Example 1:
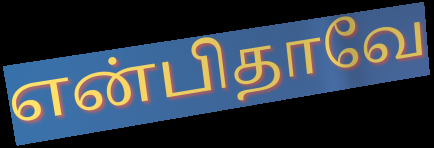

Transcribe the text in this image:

என்பிதாவே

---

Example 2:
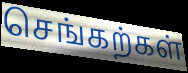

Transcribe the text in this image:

செங்கற்கள்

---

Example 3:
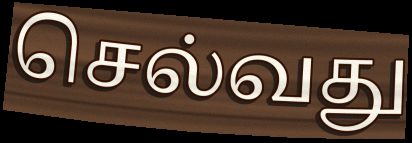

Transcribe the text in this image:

செல்வது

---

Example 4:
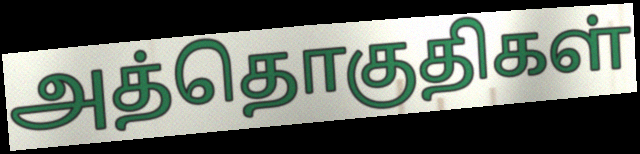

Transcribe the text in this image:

அத்தொகுதிகள்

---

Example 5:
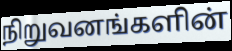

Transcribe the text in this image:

நிறுவனங்களின்